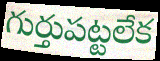
గుర్తుపట్టలేక